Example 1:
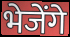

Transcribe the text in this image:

भेजेंगे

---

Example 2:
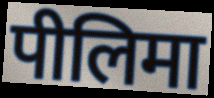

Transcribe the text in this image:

पीलिमा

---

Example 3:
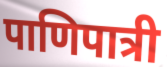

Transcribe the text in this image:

पाणिपात्री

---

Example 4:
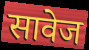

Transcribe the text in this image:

सावेज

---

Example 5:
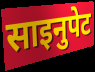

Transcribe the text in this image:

साइनुपेट